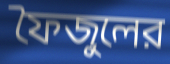
ফৈজুলের